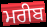
ਮਰੀਬ